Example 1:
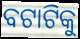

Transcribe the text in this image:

ବଟାଟିକୁ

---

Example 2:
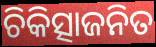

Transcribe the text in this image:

ଚିକିତ୍ସାଜନିତ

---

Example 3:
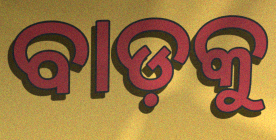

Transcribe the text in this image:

ବାଡ଼କୁ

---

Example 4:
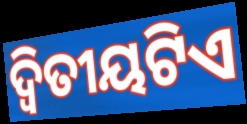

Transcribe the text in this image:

ଦ୍ୱିତୀୟଟିଏ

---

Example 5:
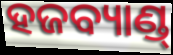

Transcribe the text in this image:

ହଜବ୍ୟାଣ୍ଡ୍